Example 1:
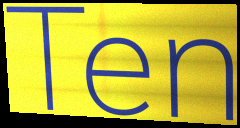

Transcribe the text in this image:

Ten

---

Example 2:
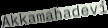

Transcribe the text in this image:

Akkamahadevi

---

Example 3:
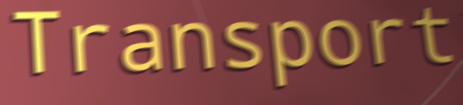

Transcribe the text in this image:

Transport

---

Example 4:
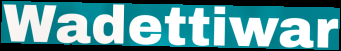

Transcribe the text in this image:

Wadettiwar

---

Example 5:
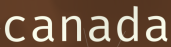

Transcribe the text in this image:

canada